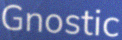
Gnostic